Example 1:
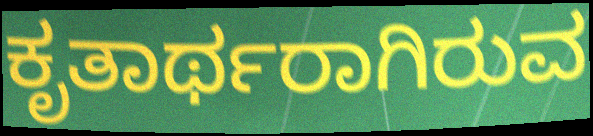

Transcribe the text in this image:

ಕೃತಾರ್ಥರಾಗಿರುವ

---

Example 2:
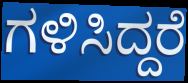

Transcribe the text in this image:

ಗಳಿಸಿದ್ದರೆ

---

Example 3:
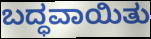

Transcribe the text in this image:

ಬದ್ಧವಾಯಿತು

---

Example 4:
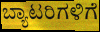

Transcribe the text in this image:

ಬ್ಯಾಟರಿಗಳಿಗೆ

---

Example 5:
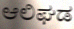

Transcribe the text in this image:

ಆಲಿಘಡ